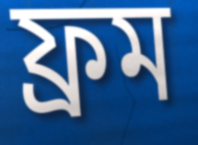
ফ্রম